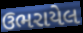
ઉભરાયેલ